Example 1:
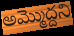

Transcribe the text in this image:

అమ్మొద్దని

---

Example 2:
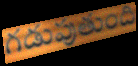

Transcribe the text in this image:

గడుపుతుంది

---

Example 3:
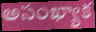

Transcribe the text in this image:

అసంఖ్యాక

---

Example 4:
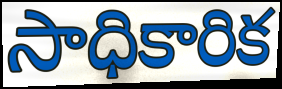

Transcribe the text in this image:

సాధికారిక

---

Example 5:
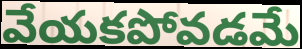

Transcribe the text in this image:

వేయకపోవడమే